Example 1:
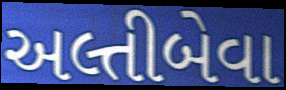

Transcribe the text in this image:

અલ્તીબેવા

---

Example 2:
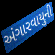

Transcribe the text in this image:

અંગારવાયુની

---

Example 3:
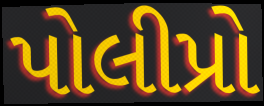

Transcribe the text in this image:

પોલીપ્રો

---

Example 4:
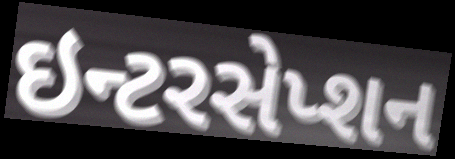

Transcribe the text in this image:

ઇન્ટરસેપ્શન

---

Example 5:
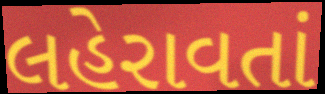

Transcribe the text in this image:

લહેરાવતાં